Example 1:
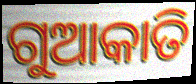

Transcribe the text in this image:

ଗୁଆକାତି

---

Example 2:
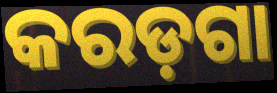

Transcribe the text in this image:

କରଡ଼ଗା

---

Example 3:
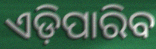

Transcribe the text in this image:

ଏଡ଼ିପାରିବ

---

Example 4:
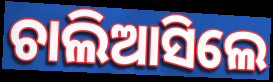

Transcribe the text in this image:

ଚାଲିଆସିଲେ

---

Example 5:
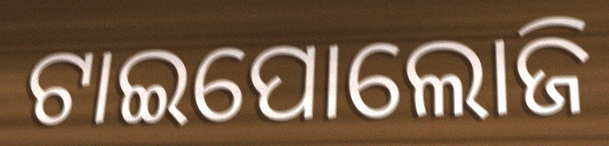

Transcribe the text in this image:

ଟାଇପୋଲୋଜି